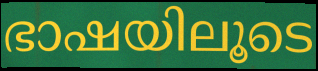
ഭാഷയിലൂടെ